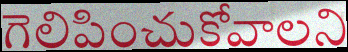
గెలిపించుకోవాలని